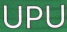
UPU